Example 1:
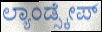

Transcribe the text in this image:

ಲ್ಯಾಂಡ್ಸ್ಕೇಪ್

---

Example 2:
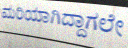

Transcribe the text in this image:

ಮರಿಯಾಗಿದ್ದಾಗಲೇ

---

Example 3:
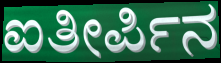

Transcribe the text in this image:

ಐತೀರ್ಪಿನ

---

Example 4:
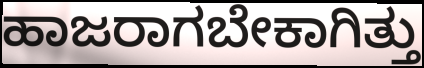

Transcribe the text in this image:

ಹಾಜರಾಗಬೇಕಾಗಿತ್ತು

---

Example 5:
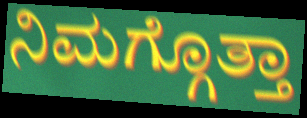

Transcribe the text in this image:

ನಿಮಗ್ಗೊತ್ತಾ